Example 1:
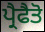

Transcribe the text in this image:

ਪ੍ਰੈਫੈਤੋ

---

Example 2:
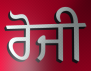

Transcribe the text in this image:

ਰੋਜੀ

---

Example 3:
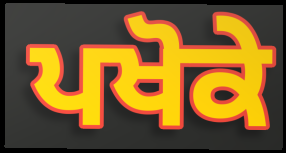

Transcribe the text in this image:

ਪਖੋਕੇ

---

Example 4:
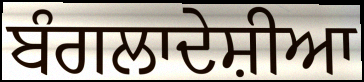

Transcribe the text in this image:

ਬੰਗਲਾਦੇਸ਼ੀਆ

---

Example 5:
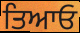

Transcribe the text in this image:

ਤਿਆਓ